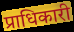
प्राधिकारी